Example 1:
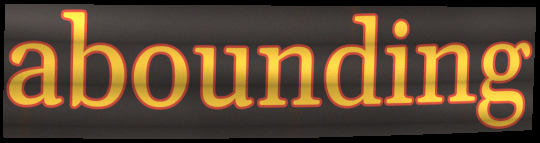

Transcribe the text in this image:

abounding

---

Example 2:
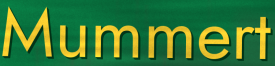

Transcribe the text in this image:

Mummert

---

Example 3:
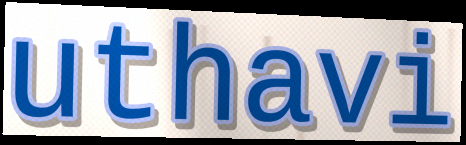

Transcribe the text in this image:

uthavi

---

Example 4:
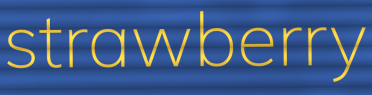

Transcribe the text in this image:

strawberry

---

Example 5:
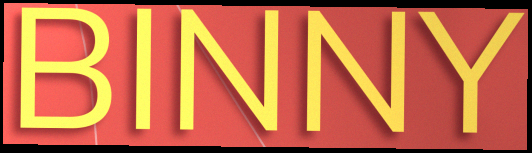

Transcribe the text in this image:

BINNY